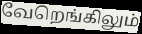
வேறெங்கிலும்